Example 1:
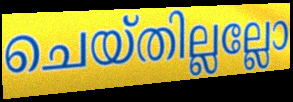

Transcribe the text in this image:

ചെയ്തില്ലല്ലോ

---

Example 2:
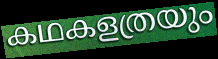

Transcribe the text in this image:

കഥകളത്രയും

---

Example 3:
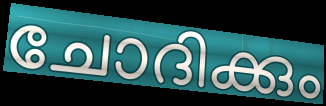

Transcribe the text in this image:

ചോദിക്കും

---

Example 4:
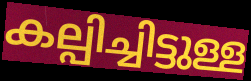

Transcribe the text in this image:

കല്പിച്ചിട്ടുള്ള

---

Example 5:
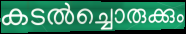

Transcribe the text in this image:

കടൽച്ചൊരുക്കും